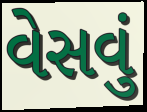
વેસવું